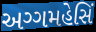
અગ્ગમહેસિં